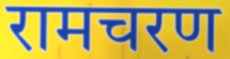
रामचरण